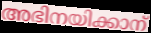
അഭിനയിക്കാന്